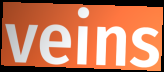
veins